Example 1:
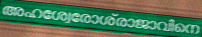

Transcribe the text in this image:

അഹശ്വേരോശ്‌രാജാവിനെ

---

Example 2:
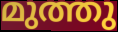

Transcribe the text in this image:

മുത്തു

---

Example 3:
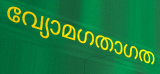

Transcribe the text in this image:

വ്യോമഗതാഗത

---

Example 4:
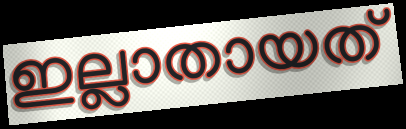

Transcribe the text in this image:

ഇല്ലാതായത്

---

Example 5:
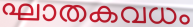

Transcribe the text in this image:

ഘാതകവധം